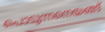
പൊടുന്നനെയങ്ങ്